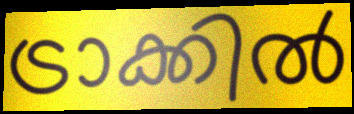
ട്രാക്കിൽ